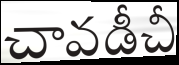
చావడీచీ